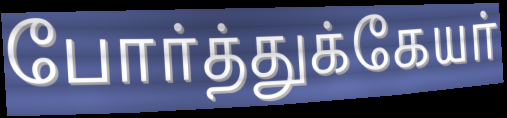
போர்த்துக்கேயர்